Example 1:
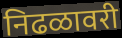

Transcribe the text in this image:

निढळावरी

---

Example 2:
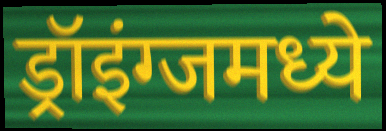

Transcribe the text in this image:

ड्रॉइंग्जमध्ये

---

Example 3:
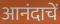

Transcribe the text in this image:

आनंदाचें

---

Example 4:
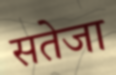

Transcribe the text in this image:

सतेजा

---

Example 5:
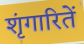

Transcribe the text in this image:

शृंगारितें